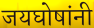
जयघोषांनी